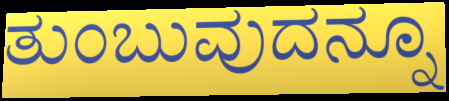
ತುಂಬುವುದನ್ನೂ